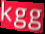
kgg